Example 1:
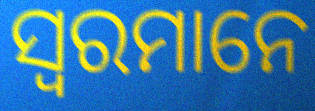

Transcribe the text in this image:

ସ୍ୱରମାନେ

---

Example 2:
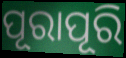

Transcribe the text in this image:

ପୂରାପୂରି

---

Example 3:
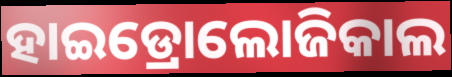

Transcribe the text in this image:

ହାଇଡ୍ରୋଲୋଜିକାଲ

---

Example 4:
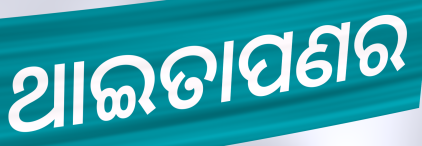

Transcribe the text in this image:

ଥାଇତାପଣର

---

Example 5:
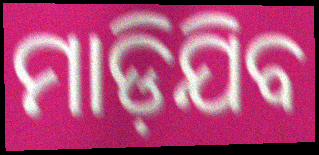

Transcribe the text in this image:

ମାଡ଼ିଯିବ